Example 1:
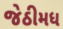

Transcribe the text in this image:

જેઠીમધ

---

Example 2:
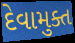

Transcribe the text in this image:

દેવામુક્ત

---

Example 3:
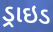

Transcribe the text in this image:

ડ્રાઇડ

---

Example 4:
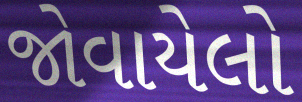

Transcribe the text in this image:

જોવાયેલો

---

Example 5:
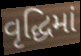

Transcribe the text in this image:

વૃદ્ધિમાં